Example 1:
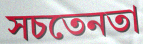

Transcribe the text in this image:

সচতেনতা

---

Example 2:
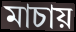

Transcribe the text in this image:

মাচায়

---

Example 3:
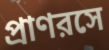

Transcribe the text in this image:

প্রাণরসে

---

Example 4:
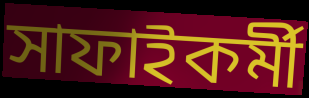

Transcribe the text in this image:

সাফাইকর্মী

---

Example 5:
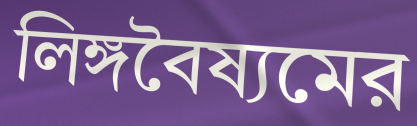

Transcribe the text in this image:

লিঙ্গবৈষ্যমের